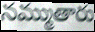
నమ్ముతారు